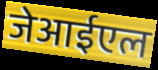
जेआईएल